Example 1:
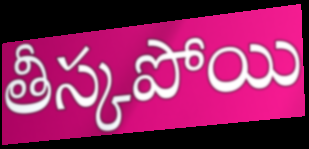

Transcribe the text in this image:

తీస్కపోయి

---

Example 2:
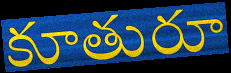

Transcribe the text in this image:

కూతురూ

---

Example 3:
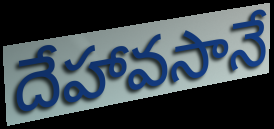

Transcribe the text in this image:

దేహావసానే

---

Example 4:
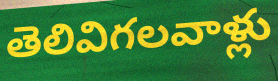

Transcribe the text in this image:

తెలివిగలవాళ్లు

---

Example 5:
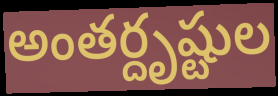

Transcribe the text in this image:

అంతర్దృష్టుల